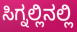
ಸಿಗ್ನಲ್ಲಿನಲ್ಲಿ